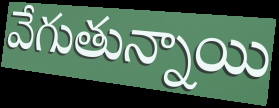
వేగుతున్నాయి